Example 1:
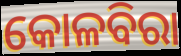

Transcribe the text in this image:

କୋଳବିରା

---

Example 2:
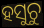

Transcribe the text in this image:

ହସୁଚୁ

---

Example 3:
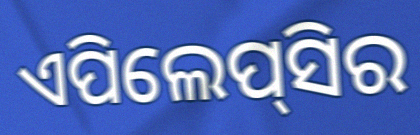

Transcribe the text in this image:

ଏପିଲେପ୍‌ସିର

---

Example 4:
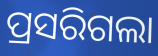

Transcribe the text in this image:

ପ୍ରସରିଗଲା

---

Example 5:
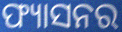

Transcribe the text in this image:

ଫ୍ୟାସନର